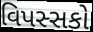
વિપસ્સકો